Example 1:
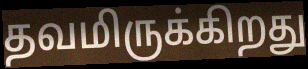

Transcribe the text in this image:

தவமிருக்கிறது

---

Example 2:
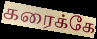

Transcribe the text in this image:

கரைக்கே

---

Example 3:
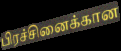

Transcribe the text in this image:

பிரச்சினைக்கான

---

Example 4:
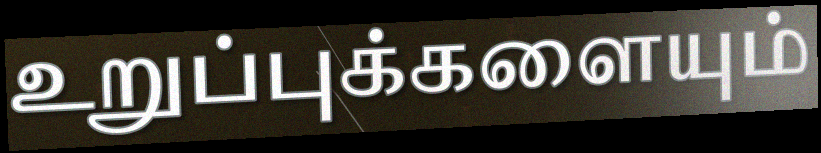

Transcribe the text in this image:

உறுப்புக்களையும்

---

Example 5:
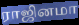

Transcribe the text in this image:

ராஜினமா